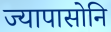
ज्यापासोनि